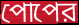
পোপের